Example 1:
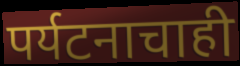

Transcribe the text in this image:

पर्यटनाचाही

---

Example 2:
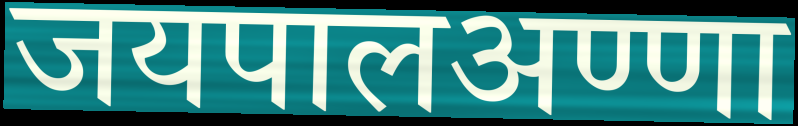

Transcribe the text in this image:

जयपालअण्णा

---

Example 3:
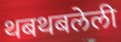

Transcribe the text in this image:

थबथबलेली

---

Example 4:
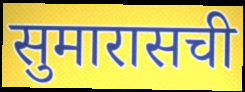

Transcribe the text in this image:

सुमारासची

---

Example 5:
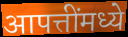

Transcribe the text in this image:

आपत्तींमध्ये